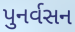
પુનર્વસન